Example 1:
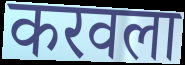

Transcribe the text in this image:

करवला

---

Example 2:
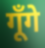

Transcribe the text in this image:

गूँगे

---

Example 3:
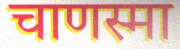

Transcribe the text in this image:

चाणस्मा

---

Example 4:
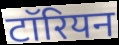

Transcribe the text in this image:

टॉरियन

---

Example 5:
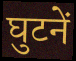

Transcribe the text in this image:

घुटनें